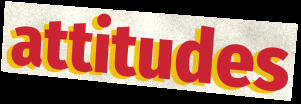
attitudes